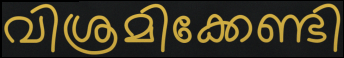
വിശ്രമിക്കേണ്ടി